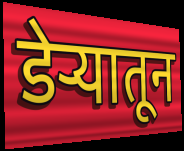
डेऱ्यातून